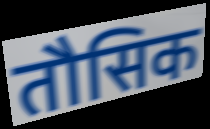
तौसिक